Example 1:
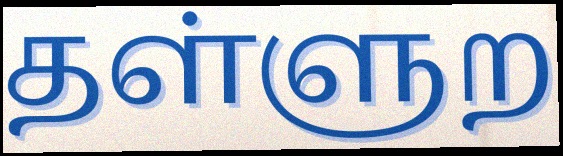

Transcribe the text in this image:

தள்ளுற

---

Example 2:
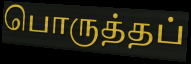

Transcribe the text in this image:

பொருத்தப்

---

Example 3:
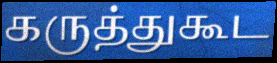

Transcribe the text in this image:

கருத்துகூட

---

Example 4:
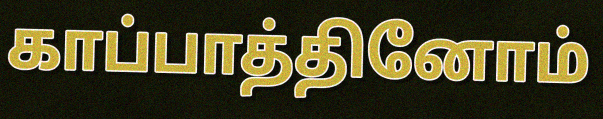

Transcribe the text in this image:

காப்பாத்தினோம்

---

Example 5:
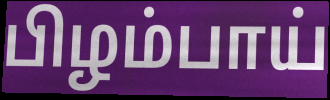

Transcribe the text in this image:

பிழம்பாய்